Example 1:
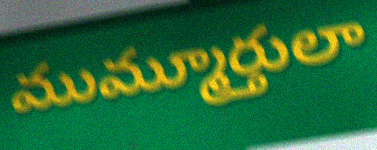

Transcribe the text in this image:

ముమ్మూర్తులా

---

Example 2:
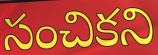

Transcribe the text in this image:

సంచికని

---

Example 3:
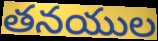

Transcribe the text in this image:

తనయుల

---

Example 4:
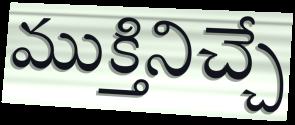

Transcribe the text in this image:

ముక్తినిచ్చే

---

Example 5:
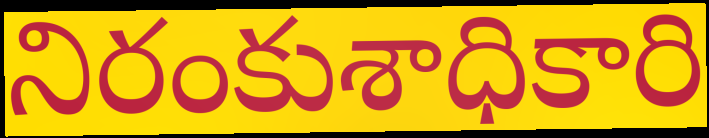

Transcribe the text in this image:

నిరంకుశాధికారి